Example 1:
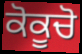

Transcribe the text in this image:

ਕੋਕੂਚੋ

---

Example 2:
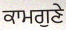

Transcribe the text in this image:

ਕਾਮਗੁਣੇ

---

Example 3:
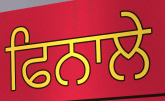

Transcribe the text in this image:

ਫਿਨਾਲੇ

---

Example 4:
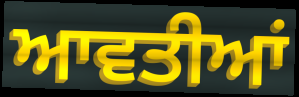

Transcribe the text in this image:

ਆਵਤੀਆਂ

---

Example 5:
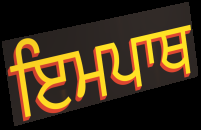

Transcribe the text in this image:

ਇਮਪਾਥ